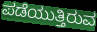
ಪಡೆಯುತ್ತಿರುವ